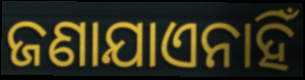
ଜଣାଯାଏନାହିଁ